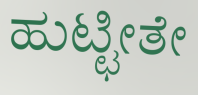
ಹುಟ್ಟೀತೇ